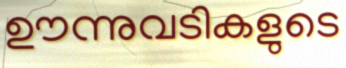
ഊന്നുവടികളുടെ